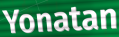
Yonatan